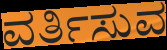
ವರ್ತಿಸುವ